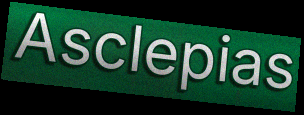
Asclepias